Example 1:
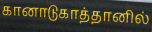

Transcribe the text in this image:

கானாடுகாத்தானில்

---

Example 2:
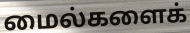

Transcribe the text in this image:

மைல்களைக்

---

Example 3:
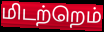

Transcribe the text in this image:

மிடற்றெம்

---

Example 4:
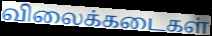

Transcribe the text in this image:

விலைக்கடைகள்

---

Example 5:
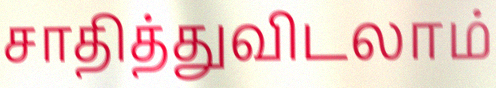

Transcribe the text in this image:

சாதித்துவிடலாம்